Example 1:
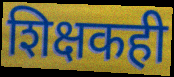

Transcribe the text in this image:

शिक्षकही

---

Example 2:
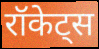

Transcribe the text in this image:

रॉकेट्स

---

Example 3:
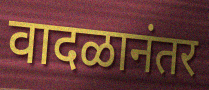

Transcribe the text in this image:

वादळानंतर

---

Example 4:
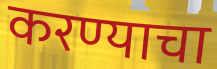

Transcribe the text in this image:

करण्याचा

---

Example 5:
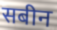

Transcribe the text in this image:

सबीन